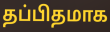
தப்பிதமாக